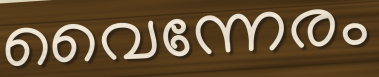
വൈന്നേരം